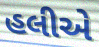
હલીએ